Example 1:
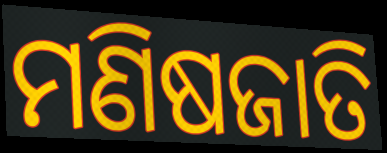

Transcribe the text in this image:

ମଣିଷଜାତି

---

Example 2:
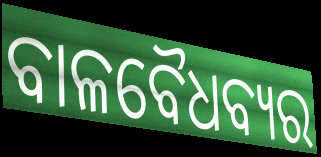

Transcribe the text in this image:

ବାଳବୈଧବ୍ୟର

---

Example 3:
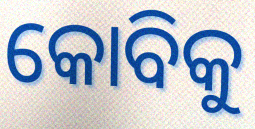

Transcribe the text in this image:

କୋବିକୁ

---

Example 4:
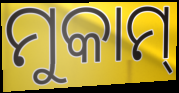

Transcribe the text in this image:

ମୁକାମ୍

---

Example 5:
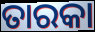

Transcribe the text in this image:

ତାରକା